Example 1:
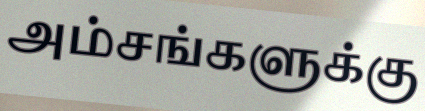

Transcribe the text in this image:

அம்சங்களுக்கு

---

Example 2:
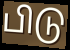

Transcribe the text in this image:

பிடு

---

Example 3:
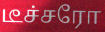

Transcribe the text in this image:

டீச்சரோ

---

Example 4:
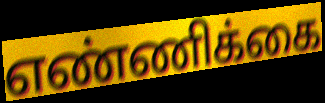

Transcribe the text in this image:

எண்ணிக்கை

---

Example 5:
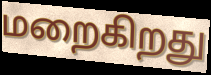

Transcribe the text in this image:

மறைகிறது